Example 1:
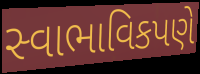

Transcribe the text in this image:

સ્વાભાવિકપણે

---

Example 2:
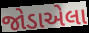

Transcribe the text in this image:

જોડાએલા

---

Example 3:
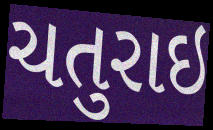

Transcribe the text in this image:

ચતુરાઇ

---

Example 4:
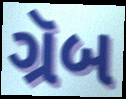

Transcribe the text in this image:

ગ્રૅબ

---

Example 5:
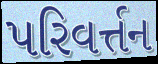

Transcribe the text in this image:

પરિવર્ત્તન